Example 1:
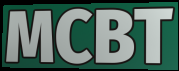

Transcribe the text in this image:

MCBT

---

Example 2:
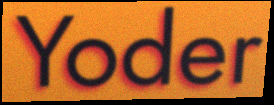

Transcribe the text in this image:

Yoder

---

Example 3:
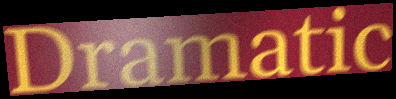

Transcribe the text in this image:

Dramatic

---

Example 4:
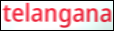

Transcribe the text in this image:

telangana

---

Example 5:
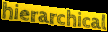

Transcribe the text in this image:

hierarchical